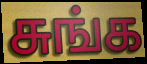
சுங்க